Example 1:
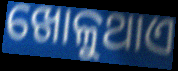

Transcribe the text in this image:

ଖୋଳୁଥାଏ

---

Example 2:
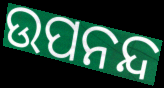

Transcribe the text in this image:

ଉପନନ୍ଦ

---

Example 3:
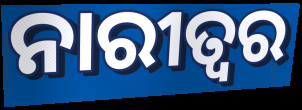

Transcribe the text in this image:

ନାରୀତ୍ୱର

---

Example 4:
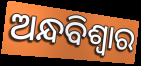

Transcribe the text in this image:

ଅନ୍ଧବିଶ୍ୱାର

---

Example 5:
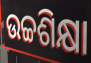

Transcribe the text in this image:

ଉଚ୍ଚଶିକ୍ଷା